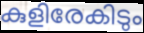
കുളിരേകിടും